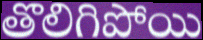
తొలిగిపోయి